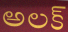
అలక్